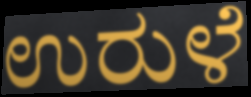
ಉರುಳೆ